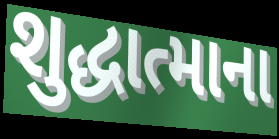
શુદ્ધાત્માના